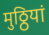
मुठ्ठियां